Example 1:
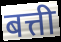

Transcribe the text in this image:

बत्ती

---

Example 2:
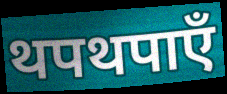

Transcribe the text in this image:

थपथपाएँ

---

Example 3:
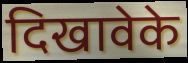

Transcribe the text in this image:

दिखावेके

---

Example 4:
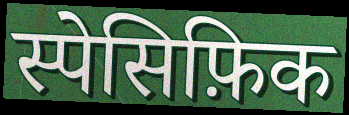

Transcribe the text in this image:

स्पेसिफ़िक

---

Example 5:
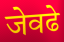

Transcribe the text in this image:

जेवढे